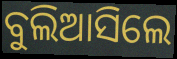
ବୁଲିଆସିଲେ